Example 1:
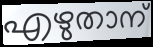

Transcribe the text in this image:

എഴുതാന്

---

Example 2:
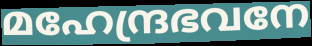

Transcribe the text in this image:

മഹേന്ദ്രഭവനേ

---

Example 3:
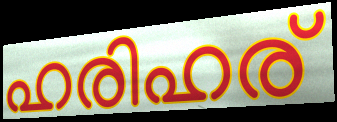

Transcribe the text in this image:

ഹരിഹര്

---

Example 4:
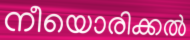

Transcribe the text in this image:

നീയൊരിക്കൽ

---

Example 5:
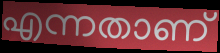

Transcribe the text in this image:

എന്നതാണ്